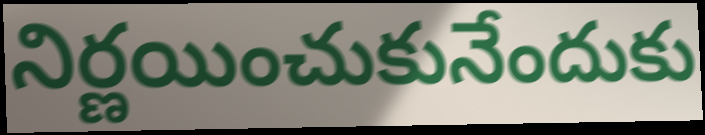
నిర్ణయించుకునేందుకు